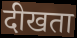
दीखता